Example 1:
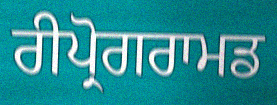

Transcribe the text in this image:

ਰੀਪ੍ਰੋਗਰਾਮਡ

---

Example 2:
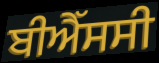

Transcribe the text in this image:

ਬੀਐੱਸਸੀ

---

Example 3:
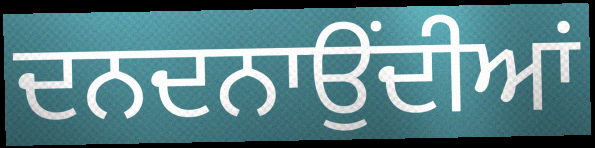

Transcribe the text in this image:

ਦਨਦਨਾਉਂਦੀਆਂ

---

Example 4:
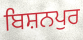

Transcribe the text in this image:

ਬਿਸ਼ਨਪੁਰ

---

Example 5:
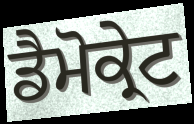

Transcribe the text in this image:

ਡੈਮੋਕ੍ਰੇਟ